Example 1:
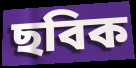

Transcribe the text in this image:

ছবিক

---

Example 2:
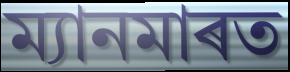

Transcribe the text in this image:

ম্যানমাৰত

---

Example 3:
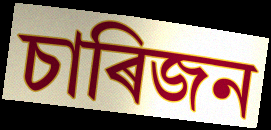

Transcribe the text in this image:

চাৰিজন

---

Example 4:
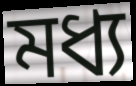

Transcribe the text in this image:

মধ্য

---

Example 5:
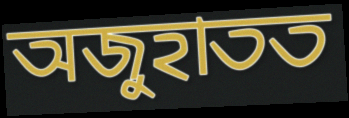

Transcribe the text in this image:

অজুহাতত